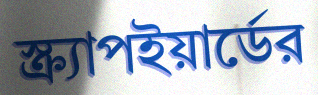
স্ক্র্যাপইয়ার্ডের